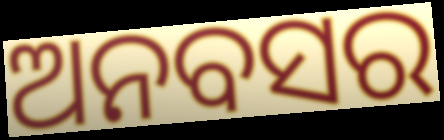
ଅନବସର